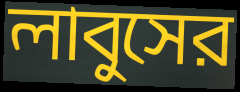
লাবুসের